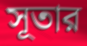
সূতার